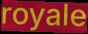
royale